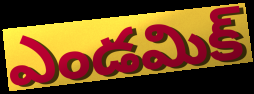
ఎండమిక్